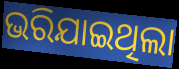
ଭରିଯାଇଥିଲା